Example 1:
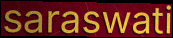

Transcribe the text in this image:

saraswati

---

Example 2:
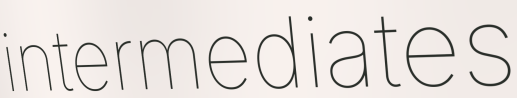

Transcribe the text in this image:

intermediates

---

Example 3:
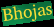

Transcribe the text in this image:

Bhojas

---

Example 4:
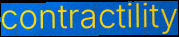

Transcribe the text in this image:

contractility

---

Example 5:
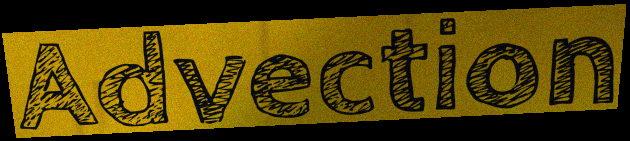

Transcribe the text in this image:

Advection